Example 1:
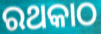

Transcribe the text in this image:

ରଥକାଠ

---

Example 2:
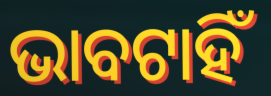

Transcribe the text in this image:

ଭାବଟାହିଁ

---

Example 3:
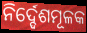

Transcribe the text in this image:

ନିର୍ଦ୍ଦେଶମୂଳକ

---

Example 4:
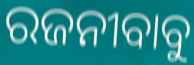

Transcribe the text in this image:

ରଜନୀବାବୁ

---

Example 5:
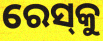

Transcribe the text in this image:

ରେସ୍‌କୁ